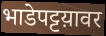
भाडेपट्टय़ावर